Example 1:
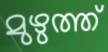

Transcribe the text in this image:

മുഴുത്ത്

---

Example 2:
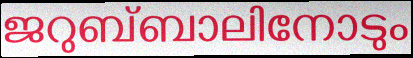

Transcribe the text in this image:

ജറുബ്‌ബാലിനോടും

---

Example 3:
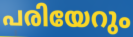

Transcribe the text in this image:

പരിയേറും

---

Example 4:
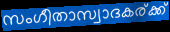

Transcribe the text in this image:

സംഗീതാസ്വാദകര്ക്ക്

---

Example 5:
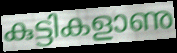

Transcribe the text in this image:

കുട്ടികളാണു